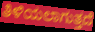
ತಿಳಿಯಲಾಗುತ್ತದೆ